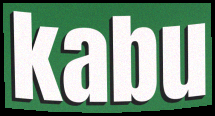
kabu